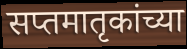
सप्तमातृकांच्या